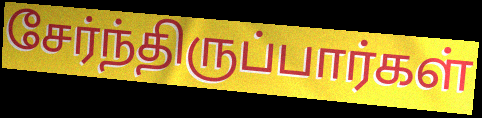
சேர்ந்திருப்பார்கள்